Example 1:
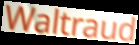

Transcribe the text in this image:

Waltraud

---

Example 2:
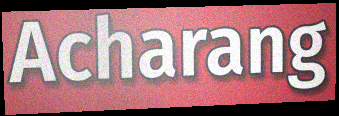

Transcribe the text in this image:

Acharang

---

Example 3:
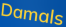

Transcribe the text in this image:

Damals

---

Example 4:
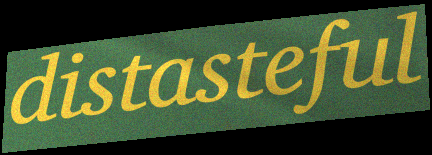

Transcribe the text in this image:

distasteful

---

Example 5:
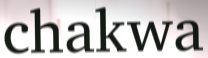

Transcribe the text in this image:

chakwa